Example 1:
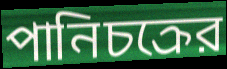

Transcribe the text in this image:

পানিচক্রের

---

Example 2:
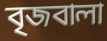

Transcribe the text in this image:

বৃজবালা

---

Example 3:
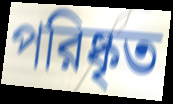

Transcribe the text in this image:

পরিষ্কৃত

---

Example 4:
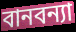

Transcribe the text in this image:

বানবন্যা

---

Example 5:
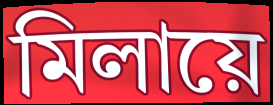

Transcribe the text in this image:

মিলায়ে